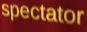
spectator